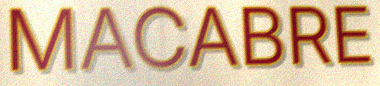
MACABRE